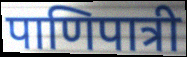
पाणिपात्री